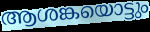
ആശങ്കയൊട്ടും